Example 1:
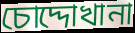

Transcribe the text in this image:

চোদ্দোখানা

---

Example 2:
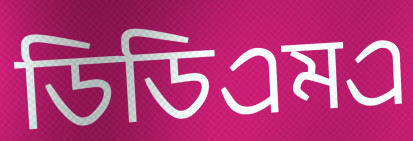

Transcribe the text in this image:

ডিডিএমএ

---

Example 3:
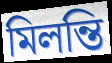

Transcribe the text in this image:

মিলন্তি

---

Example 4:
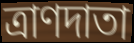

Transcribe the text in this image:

ত্রাণদাতা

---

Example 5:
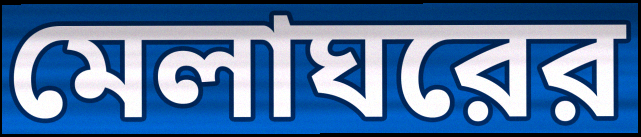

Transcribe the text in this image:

মেলাঘরের